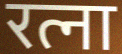
रत्ना